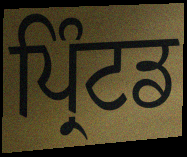
ਪ੍ਰਿੰਟਡ